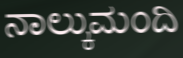
ನಾಲ್ಕುಮಂದಿ